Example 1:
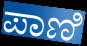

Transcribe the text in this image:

ಪಾಣಿ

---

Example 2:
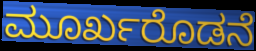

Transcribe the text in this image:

ಮೂರ್ಖರೊಡನೆ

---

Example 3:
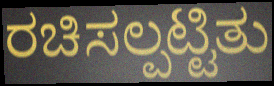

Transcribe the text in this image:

ರಚಿಸಲ್ಪಟ್ಟಿತು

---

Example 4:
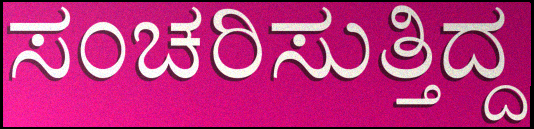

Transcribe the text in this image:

ಸಂಚರಿಸುತ್ತಿದ್ದ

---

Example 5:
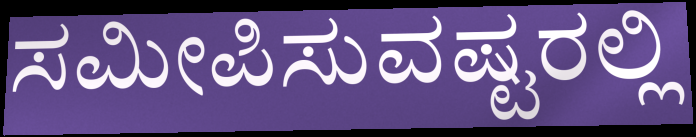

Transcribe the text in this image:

ಸಮೀಪಿಸುವಷ್ಟರಲ್ಲಿ